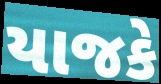
યાજકે